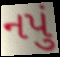
નપું